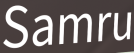
Samru